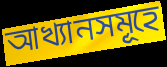
আখ্যানসমূহে